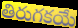
తిరుగకయే